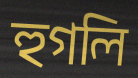
হুগলি